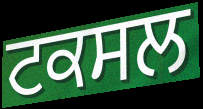
ਟਕਸਲ